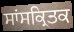
ਸਾਂਸਕ੍ਰਿਤਕ